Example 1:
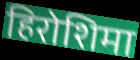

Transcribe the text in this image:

हिरोशिमा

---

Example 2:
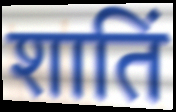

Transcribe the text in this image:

शातिं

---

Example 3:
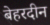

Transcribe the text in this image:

बेहरदीन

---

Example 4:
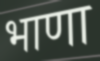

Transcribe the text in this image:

भाणा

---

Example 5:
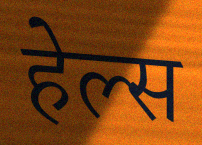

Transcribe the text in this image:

हेल्स